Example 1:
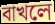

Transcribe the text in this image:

বাখলে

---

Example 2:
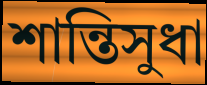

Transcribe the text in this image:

শান্তিসুধা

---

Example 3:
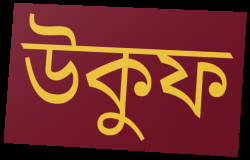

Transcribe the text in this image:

উকুফ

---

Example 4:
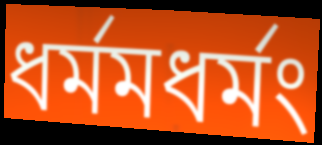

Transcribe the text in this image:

ধর্মমধর্মং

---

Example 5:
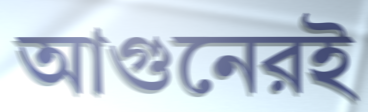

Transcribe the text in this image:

আগুনেরই